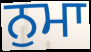
ਨੁਮਾ